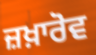
ਜ਼ਖ਼ਾਰੋਵ